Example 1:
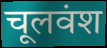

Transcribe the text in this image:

चूलवंश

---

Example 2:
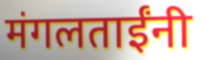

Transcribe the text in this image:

मंगलताईंनी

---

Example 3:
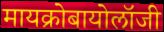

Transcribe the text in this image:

मायक्रोबायोलॉजी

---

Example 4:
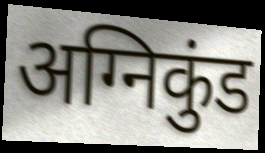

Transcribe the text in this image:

अग्निकुंड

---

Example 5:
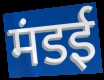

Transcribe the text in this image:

मंडई